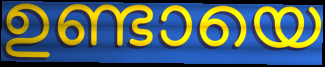
ഉണ്ടായെ